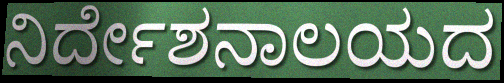
ನಿರ್ದೇಶನಾಲಯದ